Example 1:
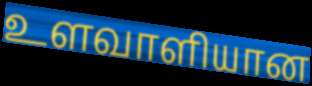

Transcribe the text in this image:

உளவாளியான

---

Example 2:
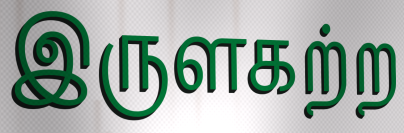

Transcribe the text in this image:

இருளகற்ற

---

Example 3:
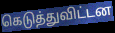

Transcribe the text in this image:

கெடுத்துவிட்டன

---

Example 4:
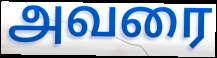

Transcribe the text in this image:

அவரை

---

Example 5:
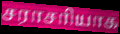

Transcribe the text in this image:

சராசரியாக